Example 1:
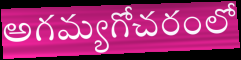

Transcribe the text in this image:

అగమ్యగోచరంలో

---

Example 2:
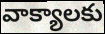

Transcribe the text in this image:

వాక్యాలకు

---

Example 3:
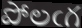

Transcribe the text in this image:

పోలఁగ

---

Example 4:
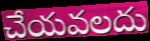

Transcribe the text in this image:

చేయవలదు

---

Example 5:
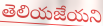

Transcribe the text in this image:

తెలియజేయని